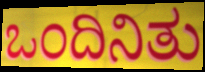
ಒಂದಿನಿತು